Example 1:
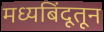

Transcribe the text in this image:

मध्यबिंदूतून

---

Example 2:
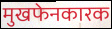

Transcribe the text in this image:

मुखफेनकारक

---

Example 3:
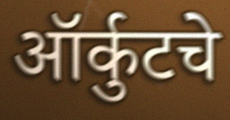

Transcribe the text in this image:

ऑर्कुटचे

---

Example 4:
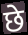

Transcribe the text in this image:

छे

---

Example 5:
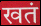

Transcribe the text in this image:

खतं